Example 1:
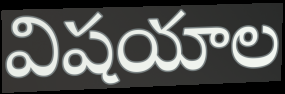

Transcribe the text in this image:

విషయాల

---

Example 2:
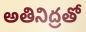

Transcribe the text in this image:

అతినిద్రతో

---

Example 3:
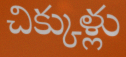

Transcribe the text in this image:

చిక్కుళ్లు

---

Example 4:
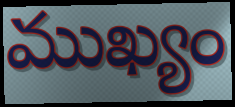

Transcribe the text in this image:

ముఖ్యం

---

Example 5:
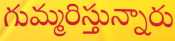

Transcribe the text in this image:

గుమ్మరిస్తున్నారు